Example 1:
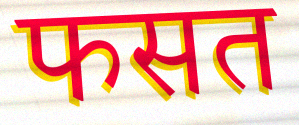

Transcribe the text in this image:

फसत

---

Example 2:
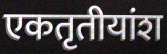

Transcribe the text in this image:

एकतृतीयांश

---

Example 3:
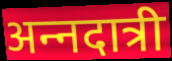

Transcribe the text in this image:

अन्नदात्री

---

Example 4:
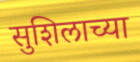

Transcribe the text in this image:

सुशिलाच्या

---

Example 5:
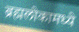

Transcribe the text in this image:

ब्रह्मलोकामध्ये